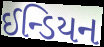
ઈન્ડિયન